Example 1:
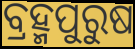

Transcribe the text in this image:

ବ୍ରହ୍ମପୁରୁଷ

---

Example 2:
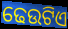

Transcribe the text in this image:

ଢେଉଟିଏ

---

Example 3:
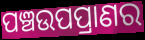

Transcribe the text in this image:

ପଞ୍ଚଉପପ୍ରାଣର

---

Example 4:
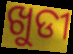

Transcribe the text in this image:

ଖୁଡୀ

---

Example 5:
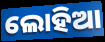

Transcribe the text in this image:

ଲୋହିଆ